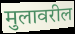
मुलावरील